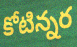
కోటిన్నర